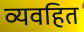
व्यवहित